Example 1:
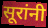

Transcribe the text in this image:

सूरांनी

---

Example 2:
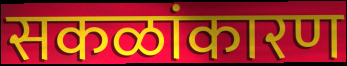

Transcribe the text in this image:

सकळांकारण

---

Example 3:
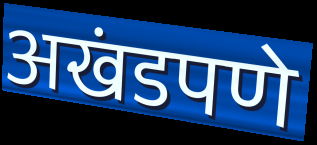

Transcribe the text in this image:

अखंडपणे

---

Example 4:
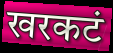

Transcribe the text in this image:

खरकटं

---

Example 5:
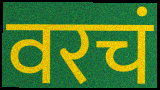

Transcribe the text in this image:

वरचं